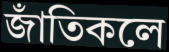
জাঁতিকলে